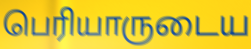
பெரியாருடைய